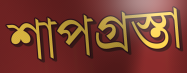
শাপগ্রস্তা